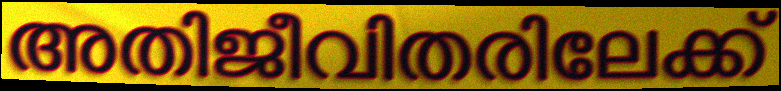
അതിജീവിതരിലേക്ക്